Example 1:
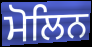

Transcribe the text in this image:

ਮੋਲਿਨ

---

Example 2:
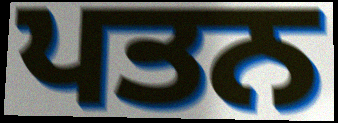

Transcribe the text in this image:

ਪਤਨ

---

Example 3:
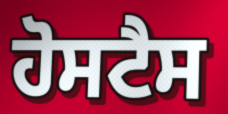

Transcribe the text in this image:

ਹੋਸਟੈਸ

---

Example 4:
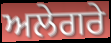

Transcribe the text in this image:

ਅਲੇਗਰੇ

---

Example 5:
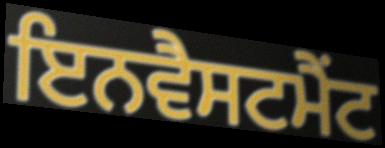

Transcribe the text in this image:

ਇਨਵੈਸਟਮੈਂਟ